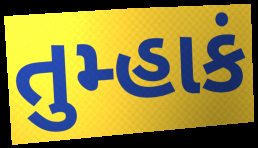
તુમ્હાકં